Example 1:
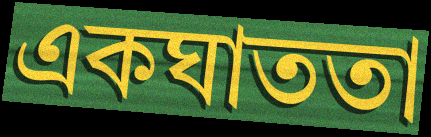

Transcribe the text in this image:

একঘাততা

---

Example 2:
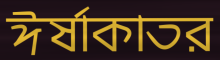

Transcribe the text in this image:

ঈর্ষাকাতর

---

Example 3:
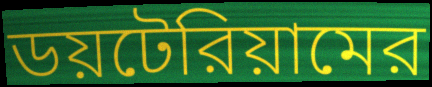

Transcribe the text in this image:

ডয়টেরিয়ামের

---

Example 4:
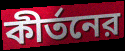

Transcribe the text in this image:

কীর্তনের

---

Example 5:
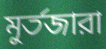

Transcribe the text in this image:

মুর্তজারা